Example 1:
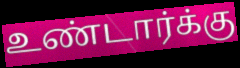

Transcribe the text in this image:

உண்டார்க்கு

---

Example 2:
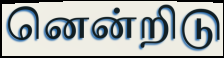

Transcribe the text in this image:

னென்றிடு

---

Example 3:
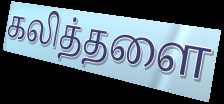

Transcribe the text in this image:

கலித்தளை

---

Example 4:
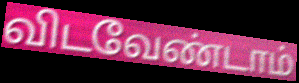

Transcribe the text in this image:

விடவேண்டாம்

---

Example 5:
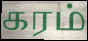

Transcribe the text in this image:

கரம்